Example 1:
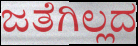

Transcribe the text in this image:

ಜತೆಗಿಲ್ಲದ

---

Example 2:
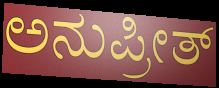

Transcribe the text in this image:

ಅನುಪ್ರೀತ್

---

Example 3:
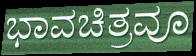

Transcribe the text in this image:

ಭಾವಚಿತ್ರವೂ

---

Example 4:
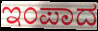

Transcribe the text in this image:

ಇಂಪಾದ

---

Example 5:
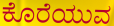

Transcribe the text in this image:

ಕೊರೆಯುವ